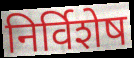
निर्विशेष